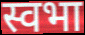
स्वभा